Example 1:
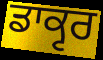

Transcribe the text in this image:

ਡਾਕ੍ਟਰ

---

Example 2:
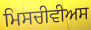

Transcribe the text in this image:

ਮਿਸਚੀਵੀਅਸ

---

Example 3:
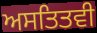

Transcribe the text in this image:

ਅਸਤਿਤਵੀ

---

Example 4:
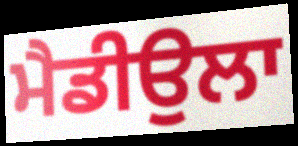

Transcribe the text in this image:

ਮੈਡੀਉਲਾ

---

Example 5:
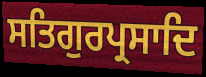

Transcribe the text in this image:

ਸਤਿਗੁਰਪ੍ਰਸਾਦਿ